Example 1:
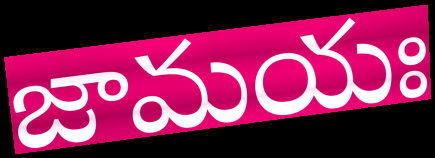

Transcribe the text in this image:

జామయః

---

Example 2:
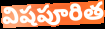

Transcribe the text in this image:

విషపూరిత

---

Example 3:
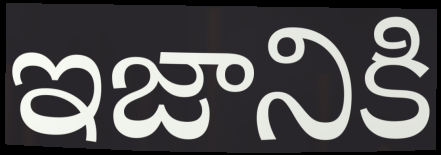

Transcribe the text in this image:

ఇజానికి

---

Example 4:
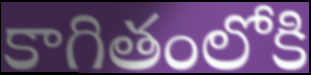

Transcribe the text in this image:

కాగితంలోకి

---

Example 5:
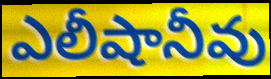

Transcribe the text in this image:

ఎలీషానీవు